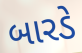
બારડે